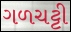
ગળચટ્ટી